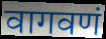
वागवणं